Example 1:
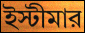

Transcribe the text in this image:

ইস্টীমার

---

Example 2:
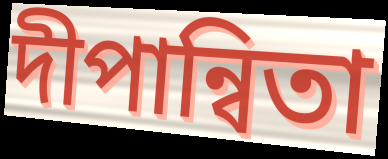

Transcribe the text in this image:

দীপান্বিতা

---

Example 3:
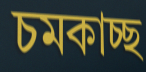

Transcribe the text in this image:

চমকাচ্ছ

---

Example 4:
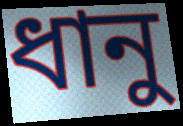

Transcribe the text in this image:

ধানু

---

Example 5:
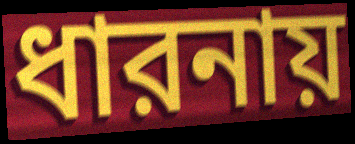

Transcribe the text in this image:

ধারনায়